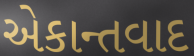
એકાન્તવાદ